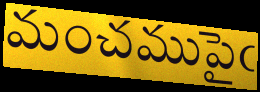
మంచముపైఁ